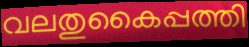
വലതുകൈപ്പത്തി